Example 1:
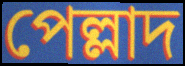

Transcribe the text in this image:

পেল্লাদ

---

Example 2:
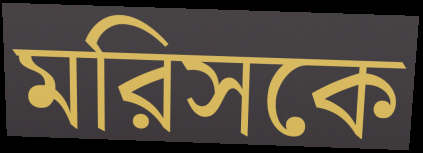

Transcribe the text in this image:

মরিসকে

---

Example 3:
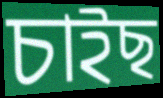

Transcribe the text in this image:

চাইছ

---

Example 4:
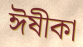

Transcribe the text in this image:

ঈষীকা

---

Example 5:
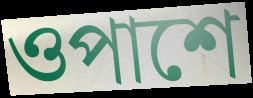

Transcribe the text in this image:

ওপাশে